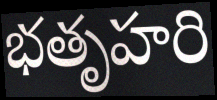
భతృహరి